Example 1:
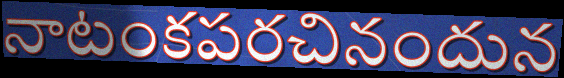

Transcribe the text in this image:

నాటంకపరచినందున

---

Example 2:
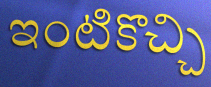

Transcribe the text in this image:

ఇంటికొచ్చి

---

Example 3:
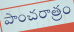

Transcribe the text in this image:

పాంచరాత్రం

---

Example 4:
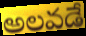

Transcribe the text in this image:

అలవడే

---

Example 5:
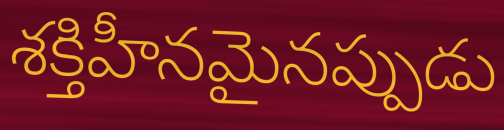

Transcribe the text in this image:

శక్తిహీనమైనప్పుడు